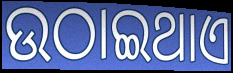
ଉଠାଇଥାଏ